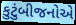
કુટુંબીજનોએ